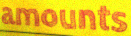
amounts